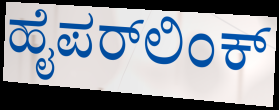
ಹೈಪರ್‌ಲಿಂಕ್